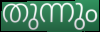
തുന്നും